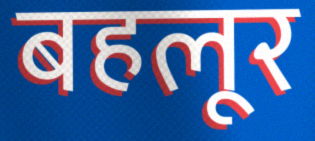
बहलूर